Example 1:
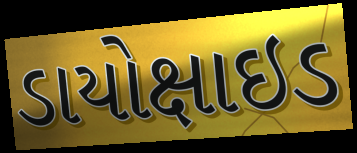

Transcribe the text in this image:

ડાયોક્ષાઇડ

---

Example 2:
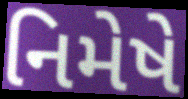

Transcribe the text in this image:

નિમેષે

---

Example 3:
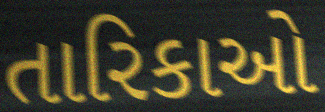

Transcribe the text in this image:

તારિકાઓ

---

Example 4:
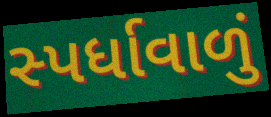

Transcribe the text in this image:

સ્પર્ધાવાળું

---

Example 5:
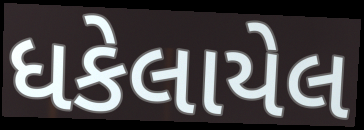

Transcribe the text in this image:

ધકેલાયેલ